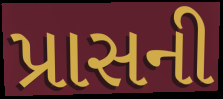
પ્રાસની